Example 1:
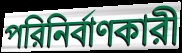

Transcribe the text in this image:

পরিনির্বাণকারী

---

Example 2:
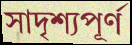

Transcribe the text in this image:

সাদৃশ্যপূর্ণ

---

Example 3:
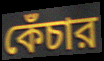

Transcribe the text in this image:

কেঁচার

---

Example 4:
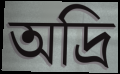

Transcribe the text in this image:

অদ্রি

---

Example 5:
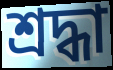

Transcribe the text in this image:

শ্রদ্ধা